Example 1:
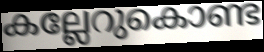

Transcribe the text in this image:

കല്ലേറുകൊണ്ട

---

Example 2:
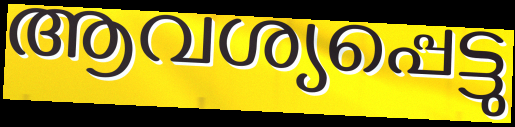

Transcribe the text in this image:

ആവശ്യപ്പെട്ടു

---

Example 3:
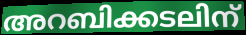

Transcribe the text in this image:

അറബിക്കടലിന്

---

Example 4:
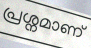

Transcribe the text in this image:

പ്രശ്നമാണ്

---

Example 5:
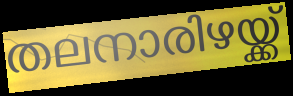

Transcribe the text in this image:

തലനാരിഴയ്ക്ക്